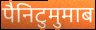
पैनिटुमुमाब